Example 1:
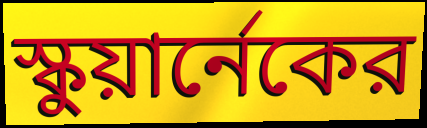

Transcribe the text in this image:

স্কুয়ার্নেকের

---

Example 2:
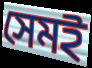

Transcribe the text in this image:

সেমই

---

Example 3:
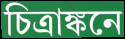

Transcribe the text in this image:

চিত্রাঙ্কনে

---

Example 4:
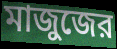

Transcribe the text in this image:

মাজুজের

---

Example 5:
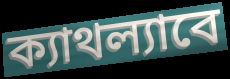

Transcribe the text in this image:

ক্যাথল্যাবে